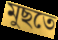
মুছতে